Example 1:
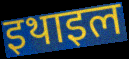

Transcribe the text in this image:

इथाइल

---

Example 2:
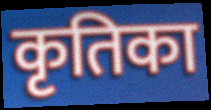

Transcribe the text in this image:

कृतिका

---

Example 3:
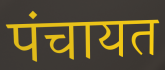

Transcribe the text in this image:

पंचायत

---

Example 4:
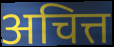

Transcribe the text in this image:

अचित्त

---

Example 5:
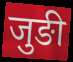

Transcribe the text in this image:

जुङी